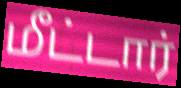
மீட்டார்